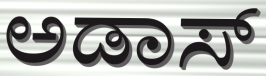
ಅಡಾಸ್